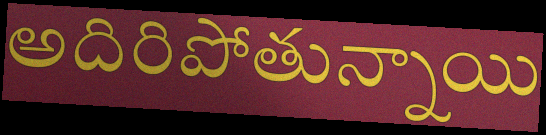
అదిరిపోతున్నాయి